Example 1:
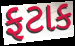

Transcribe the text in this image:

ફટાક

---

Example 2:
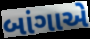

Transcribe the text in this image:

બાંગાએ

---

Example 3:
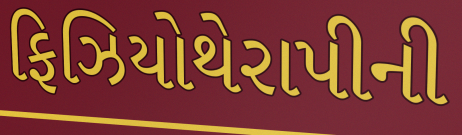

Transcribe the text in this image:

ફિઝિયોથેરાપીની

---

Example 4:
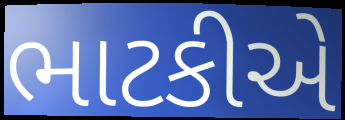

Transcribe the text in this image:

ભાટકીએ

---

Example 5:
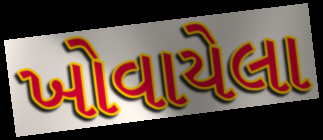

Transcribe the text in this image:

ખોવાયેલા